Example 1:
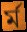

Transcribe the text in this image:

র্ম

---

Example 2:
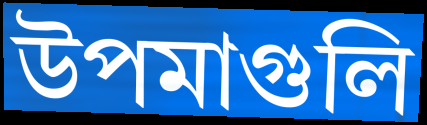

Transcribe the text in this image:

উপমাগুলি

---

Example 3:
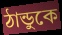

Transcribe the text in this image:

ঠান্ডুকে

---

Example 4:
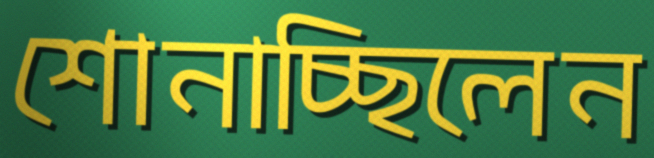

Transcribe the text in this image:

শোনাচ্ছিলেন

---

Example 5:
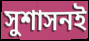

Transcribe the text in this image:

সুশাসনই